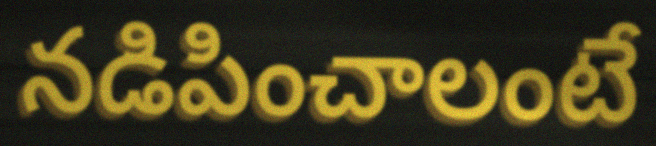
నడిపించాలంటే